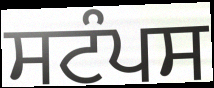
ਸਟੰਪਸ